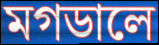
মগডালে